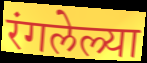
रंगलेल्या